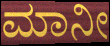
ಮಾನೀ